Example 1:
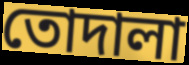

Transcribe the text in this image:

তোদালা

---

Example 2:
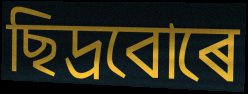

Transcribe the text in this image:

ছিদ্ৰবোৰে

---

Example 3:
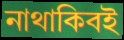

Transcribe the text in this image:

নাথাকিবই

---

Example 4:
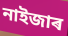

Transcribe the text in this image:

নাইজাৰ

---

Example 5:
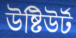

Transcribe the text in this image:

উষ্টিউৰ্ট